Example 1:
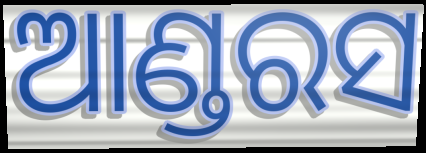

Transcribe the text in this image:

ଆଣ୍ଡରସ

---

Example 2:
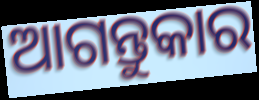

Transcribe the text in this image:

ଆଗନ୍ତୁକାର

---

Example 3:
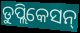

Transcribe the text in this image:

ଡୁପ୍ଲିକେସନ୍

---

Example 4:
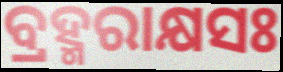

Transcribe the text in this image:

ବ୍ରହ୍ମରାକ୍ଷସଃ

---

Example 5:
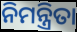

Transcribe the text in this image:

ନିମନ୍ତ୍ରିତା